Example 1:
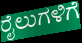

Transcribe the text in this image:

ರೈಲುಗಳಿಗೆ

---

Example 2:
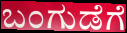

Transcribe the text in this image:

ಬಂಗುಡೆಗೆ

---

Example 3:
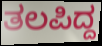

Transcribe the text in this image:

ತಲಪಿದ್ದ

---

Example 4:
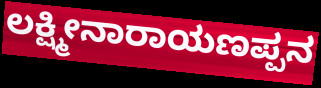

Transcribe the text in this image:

ಲಕ್ಷ್ಮೀನಾರಾಯಣಪ್ಪನ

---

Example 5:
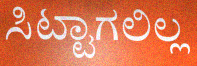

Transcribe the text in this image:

ಸಿಟ್ಟಾಗಲಿಲ್ಲ